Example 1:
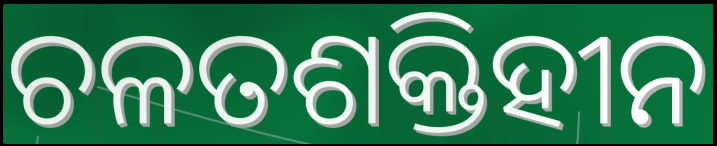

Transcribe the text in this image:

ଚଳତଶକ୍ତିହୀନ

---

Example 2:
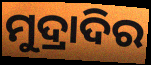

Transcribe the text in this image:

ମୁଦ୍ରାଦିର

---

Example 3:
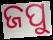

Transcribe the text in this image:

ଜପୁ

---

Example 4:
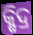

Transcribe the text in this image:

କ୍ଷିଦ୍ର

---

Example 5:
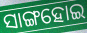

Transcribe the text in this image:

ସାଙ୍ଗହୋଇ